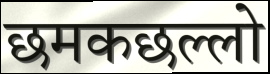
छमकछल्लो